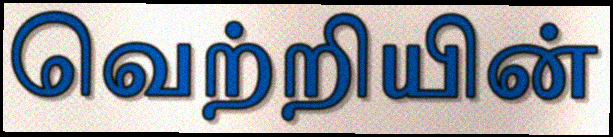
வெற்றியின்